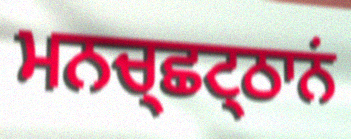
ਮਨਚ੍ਛਟ੍ਠਾਨਂ